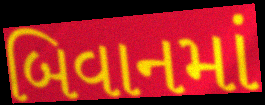
બિવાનમાં